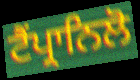
ਟੈਂਪ੍ਰਾਨਿਲੋ